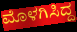
ಮೊಳಗಿಸಿದ್ದ